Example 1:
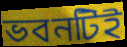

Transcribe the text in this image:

ভবনটিই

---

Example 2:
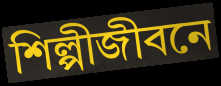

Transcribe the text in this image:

শিল্পীজীবনে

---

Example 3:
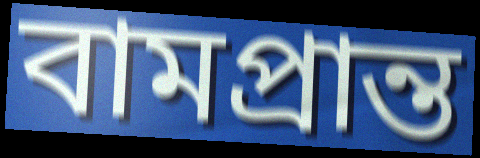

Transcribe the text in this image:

বামপ্রান্ত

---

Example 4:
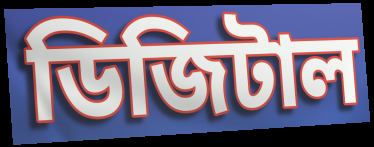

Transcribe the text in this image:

ডিজিটাল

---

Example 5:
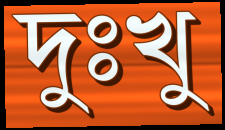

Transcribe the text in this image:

দুঃখু